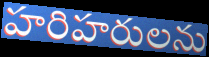
హరిహరులను